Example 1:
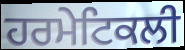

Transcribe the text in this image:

ਹਰਮੇਟਿਕਲੀ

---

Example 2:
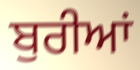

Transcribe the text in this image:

ਬੁਰੀਆਂ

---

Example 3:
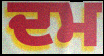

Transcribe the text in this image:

ਦਮ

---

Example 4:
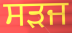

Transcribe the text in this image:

ਸੜਜ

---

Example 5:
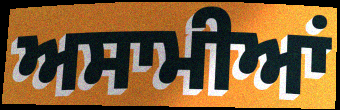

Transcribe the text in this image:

ਅਸਾਮੀਆਂ